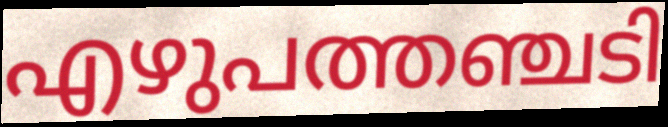
എഴുപത്തഞ്ചടി